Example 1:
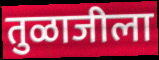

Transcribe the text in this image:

तुळाजीला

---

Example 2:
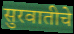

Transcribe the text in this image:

सुरवातीचे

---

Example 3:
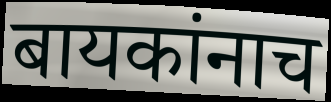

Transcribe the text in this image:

बायकांनाच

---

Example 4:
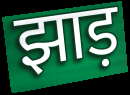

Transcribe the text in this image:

झाड़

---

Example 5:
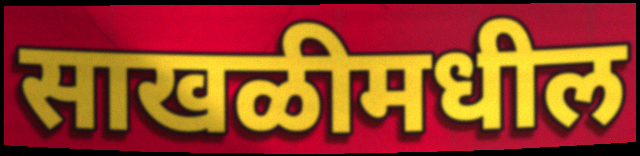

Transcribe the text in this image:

साखळीमधील